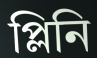
প্লিনি